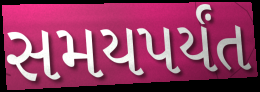
સમયપર્યંત